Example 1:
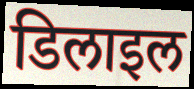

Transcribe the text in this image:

डिलाइल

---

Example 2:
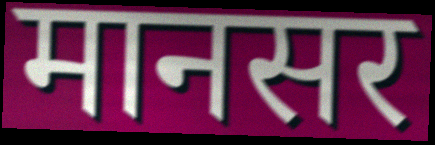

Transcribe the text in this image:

मानसर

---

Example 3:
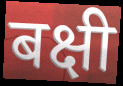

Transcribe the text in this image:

बक्षी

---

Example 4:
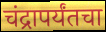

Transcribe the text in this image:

चंद्रापर्यंतचा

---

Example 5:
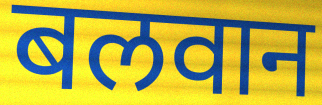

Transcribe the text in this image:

बलवान